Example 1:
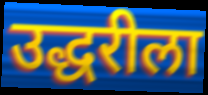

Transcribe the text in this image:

उद्धरीला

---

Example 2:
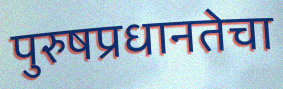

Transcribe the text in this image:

पुरुषप्रधानतेचा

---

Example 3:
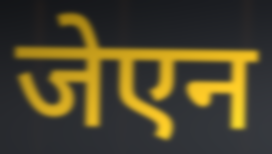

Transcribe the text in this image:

जेएन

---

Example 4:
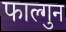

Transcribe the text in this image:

फाल्गुन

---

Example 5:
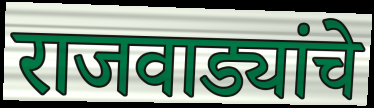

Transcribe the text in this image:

राजवाड्यांचे